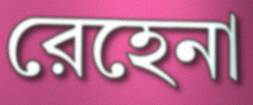
রেহেনা